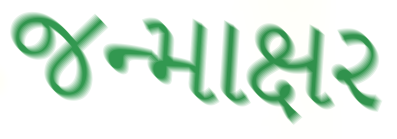
જન્માક્ષર